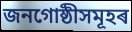
জনগোষ্ঠীসমূহৰ